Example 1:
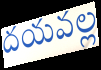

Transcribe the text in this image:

దయవల్ల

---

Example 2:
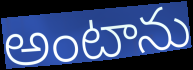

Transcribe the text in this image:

అంటాను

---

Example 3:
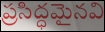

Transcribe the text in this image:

ప్రసిద్ధమైనవి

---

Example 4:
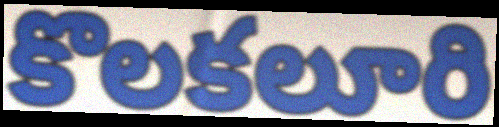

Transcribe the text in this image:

కొలకలూరి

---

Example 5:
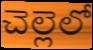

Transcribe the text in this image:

చెల్లెలో